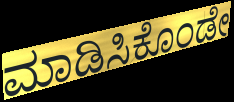
ಮಾಡಿಸಿಕೊಂಡೇ